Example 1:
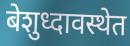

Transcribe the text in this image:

बेशुध्दावस्थेत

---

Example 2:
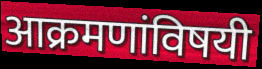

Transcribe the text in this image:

आक्रमणांविषयी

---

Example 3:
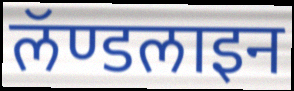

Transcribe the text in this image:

लॅण्डलाइन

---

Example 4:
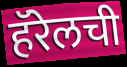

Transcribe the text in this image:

हॅरेलची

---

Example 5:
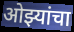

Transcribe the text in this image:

ओझ्यांचा